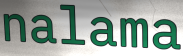
nalama